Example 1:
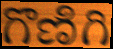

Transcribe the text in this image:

గొణిగి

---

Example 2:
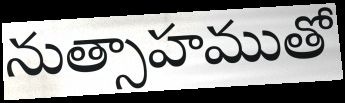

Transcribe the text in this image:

నుత్సాహముతో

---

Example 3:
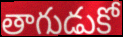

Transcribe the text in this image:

తాగుడుకో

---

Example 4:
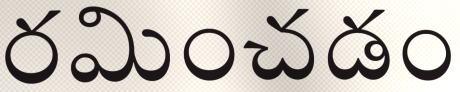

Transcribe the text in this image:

రమించడం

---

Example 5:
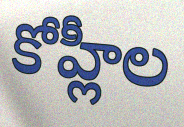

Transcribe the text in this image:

కోహ్లీల